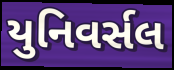
યુનિવર્સલ